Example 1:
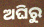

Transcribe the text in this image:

ଅଘିରୁ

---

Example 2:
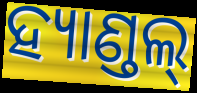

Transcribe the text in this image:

ହ୍ୟାଣ୍ଡଲ୍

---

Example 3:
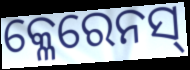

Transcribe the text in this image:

କ୍ଳେରେନସ୍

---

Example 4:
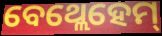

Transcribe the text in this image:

ବେଥ୍ଲେହେମ୍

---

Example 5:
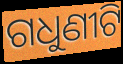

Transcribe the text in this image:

ଗଧୁଣୀଟି